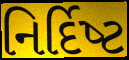
નિર્દિષ્‍ટ